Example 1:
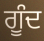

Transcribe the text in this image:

ਗੂੰਦ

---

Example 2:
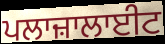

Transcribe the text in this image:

ਪਲਾਜ਼ਾਲਾਈਟ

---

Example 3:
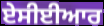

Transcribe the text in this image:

ਏਸੀਈਆਰ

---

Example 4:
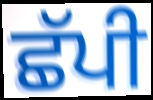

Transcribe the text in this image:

ਛੱਪੀ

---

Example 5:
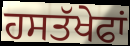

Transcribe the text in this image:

ਹਸਤੱਖੇਫਾਂ